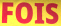
FOIS